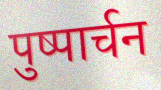
पुष्पार्चन